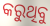
କରୁଥିବୁ